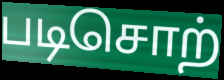
படிசொற்